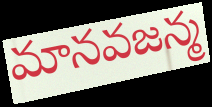
మానవజన్మ